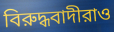
বিরুদ্ধবাদীরাও